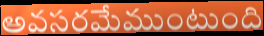
అవసరమేముంటుంది